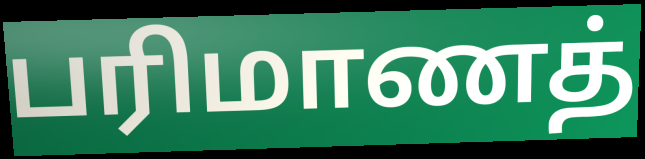
பரிமாணத்